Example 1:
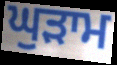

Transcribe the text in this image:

ਘੁੜਾਮ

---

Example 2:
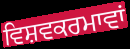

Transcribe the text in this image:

ਵਿਸ਼ਵਕਰਮਾਵਾਂ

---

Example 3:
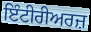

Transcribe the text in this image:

ਇੰਟੀਰੀਅਰਜ਼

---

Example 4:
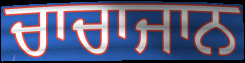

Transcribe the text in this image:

ਚਾਚਾਜਾਨ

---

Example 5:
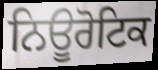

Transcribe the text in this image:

ਨਿਊਰੋਟਿਕ